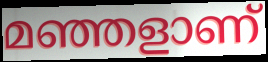
മഞ്ഞളാണ്